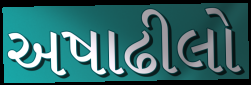
અષાઢીલો